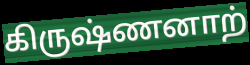
கிருஷ்ணனாற்